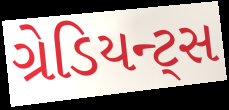
ગ્રેડિયન્ટ્સ